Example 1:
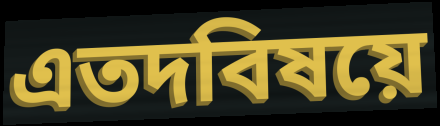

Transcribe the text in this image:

এতদবিষয়ে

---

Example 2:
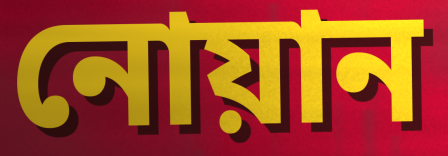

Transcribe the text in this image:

নোয়ান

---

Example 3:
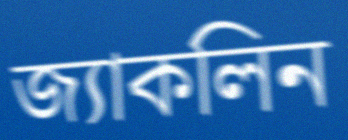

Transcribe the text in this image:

জ্যাকলিন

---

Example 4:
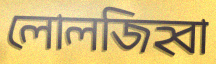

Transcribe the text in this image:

লোলজিহ্বা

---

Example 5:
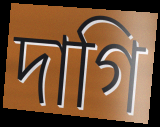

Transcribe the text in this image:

দাগি